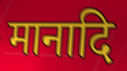
मानादि